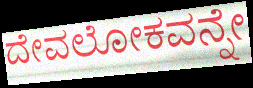
ದೇವಲೋಕವನ್ನೇ